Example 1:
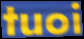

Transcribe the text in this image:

tuoi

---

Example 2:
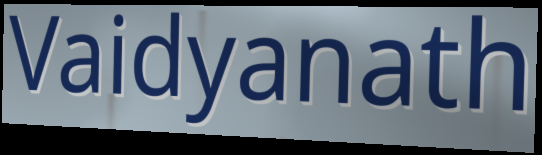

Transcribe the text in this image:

Vaidyanath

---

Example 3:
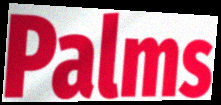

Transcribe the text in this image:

Palms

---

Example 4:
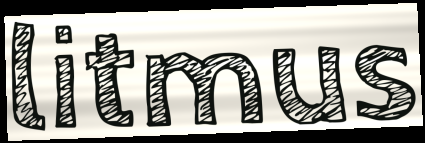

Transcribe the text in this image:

litmus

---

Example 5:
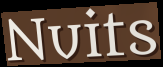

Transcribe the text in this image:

Nuits